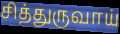
சித்துருவாய்